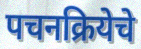
पचनक्रियेचे